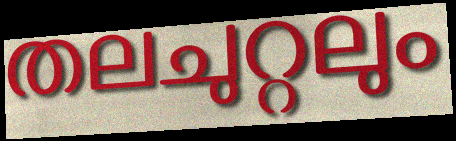
തലചുറ്റലും